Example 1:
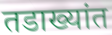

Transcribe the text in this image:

तडाख्यांत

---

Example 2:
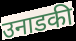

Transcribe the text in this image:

उनाडकी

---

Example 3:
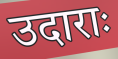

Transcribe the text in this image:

उदाराः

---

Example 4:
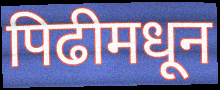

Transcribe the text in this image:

पिढीमधून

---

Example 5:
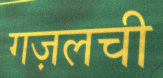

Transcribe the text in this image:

गज़लची